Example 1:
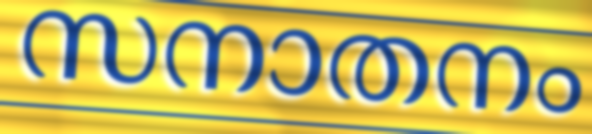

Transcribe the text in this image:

സനാതനം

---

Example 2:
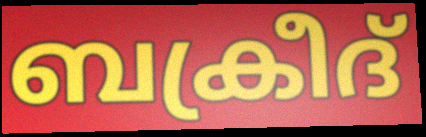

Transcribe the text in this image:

ബക്രീദ്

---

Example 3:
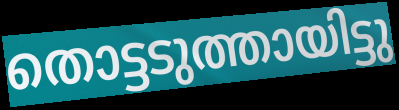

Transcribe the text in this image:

തൊട്ടടുത്തായിട്ടു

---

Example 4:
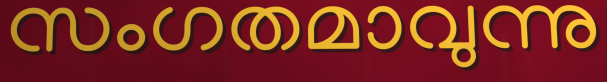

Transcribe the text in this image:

സംഗതമാവുന്നു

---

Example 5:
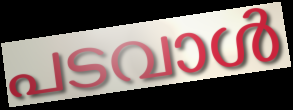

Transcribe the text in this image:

പടവാൾ